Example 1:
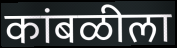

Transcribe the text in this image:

कांबळीला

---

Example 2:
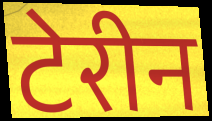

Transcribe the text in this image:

टेरीन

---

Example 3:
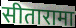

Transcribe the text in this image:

सीतारामा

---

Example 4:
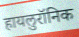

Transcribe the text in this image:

हायलुरॉनिक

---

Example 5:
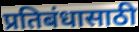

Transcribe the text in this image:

प्रतिबंधासाठी